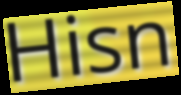
Hisn